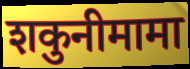
शकुनीमामा